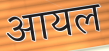
आयल